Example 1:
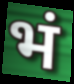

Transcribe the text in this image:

भं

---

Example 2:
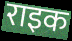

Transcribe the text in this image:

राइक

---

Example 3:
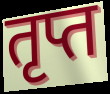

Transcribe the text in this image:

तृप्त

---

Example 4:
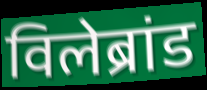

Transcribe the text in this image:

विलेब्रांड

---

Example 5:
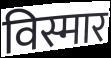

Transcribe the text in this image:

विस्मार